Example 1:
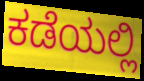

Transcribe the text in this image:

ಕಡೆಯಲ್ಲಿ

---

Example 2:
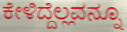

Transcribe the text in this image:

ಕೇಳಿದ್ದೆಲ್ಲವನ್ನೂ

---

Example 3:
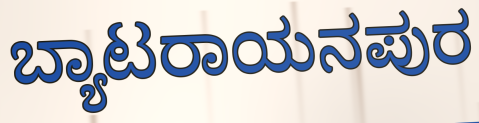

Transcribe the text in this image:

ಬ್ಯಾಟರಾಯನಪುರ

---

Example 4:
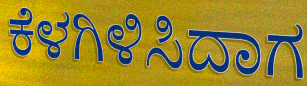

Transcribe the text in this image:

ಕೆಳಗಿಳಿಸಿದಾಗ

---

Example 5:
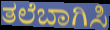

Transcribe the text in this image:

ತಲೆಬಾಗಿಸಿ